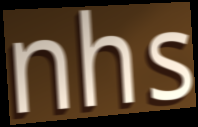
nhs